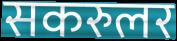
सकरुलर